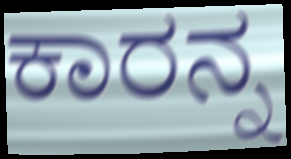
ಕಾರನ್ನ